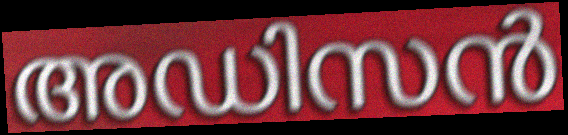
അഡിസൻ